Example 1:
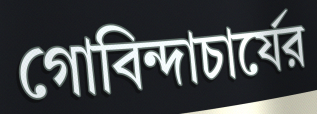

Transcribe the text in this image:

গোবিন্দাচার্যের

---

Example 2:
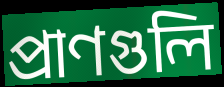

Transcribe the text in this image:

প্রাণগুলি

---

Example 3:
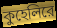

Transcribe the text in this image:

কুহেলিরে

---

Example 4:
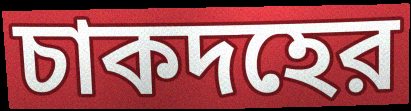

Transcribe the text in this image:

চাকদহের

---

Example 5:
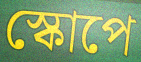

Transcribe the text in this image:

স্কোপে